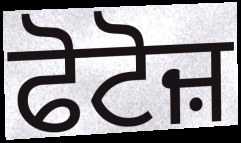
ਫੋਟੋਜ਼